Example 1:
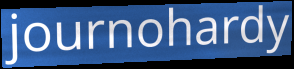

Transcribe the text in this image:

journohardy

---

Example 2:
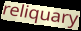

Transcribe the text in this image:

reliquary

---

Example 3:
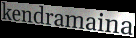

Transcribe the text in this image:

kendramaina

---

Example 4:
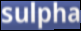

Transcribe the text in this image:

sulpha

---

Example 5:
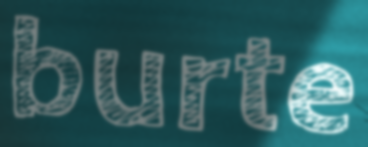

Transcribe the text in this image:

burte